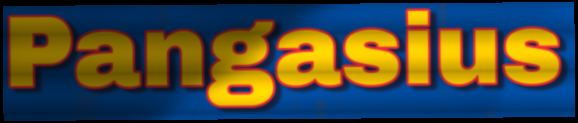
Pangasius